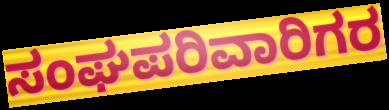
ಸಂಘಪರಿವಾರಿಗರ